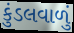
કુંડલવાળું